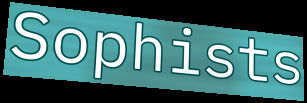
Sophists